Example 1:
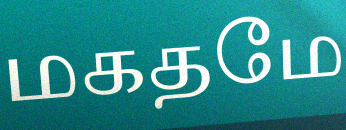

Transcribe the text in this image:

மகதமே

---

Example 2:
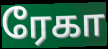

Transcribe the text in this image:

ரேகா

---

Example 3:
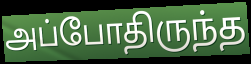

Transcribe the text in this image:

அப்போதிருந்த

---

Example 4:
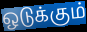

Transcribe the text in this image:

ஒடுக்கும்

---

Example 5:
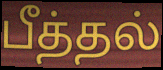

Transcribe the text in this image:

பீத்தல்